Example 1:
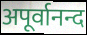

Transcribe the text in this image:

अपूर्वानन्द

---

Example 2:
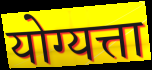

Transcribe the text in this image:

योग्यत्ता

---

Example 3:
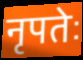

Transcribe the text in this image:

नृपतेः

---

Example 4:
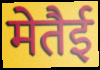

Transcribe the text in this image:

मेतैई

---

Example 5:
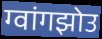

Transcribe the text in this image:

ग्वांगझोउ